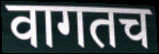
वागतच